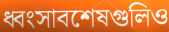
ধ্বংসাবশেষগুলিও